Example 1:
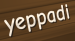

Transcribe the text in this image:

yeppadi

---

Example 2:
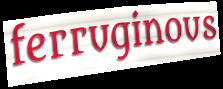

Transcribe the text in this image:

ferruginous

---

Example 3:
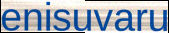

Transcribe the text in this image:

enisuvaru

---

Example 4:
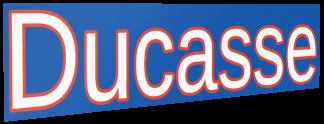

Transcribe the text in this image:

Ducasse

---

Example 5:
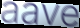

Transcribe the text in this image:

aave